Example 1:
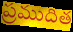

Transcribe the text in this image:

ప్రముదిత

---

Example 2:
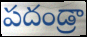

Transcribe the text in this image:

పదండ్రా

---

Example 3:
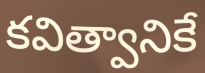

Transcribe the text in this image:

కవిత్వానికే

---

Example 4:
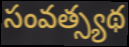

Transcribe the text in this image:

సంవత్స్యథ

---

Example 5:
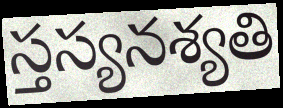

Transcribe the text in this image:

స్తస్యనశ్యతి